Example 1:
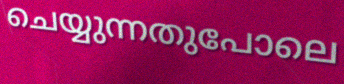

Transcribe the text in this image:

ചെയ്യുന്നതുപോലെ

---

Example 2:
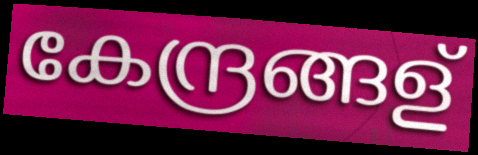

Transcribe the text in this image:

കേന്ദ്രങ്ങള്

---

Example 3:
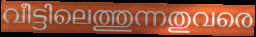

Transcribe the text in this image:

വീട്ടിലെത്തുന്നതുവരെ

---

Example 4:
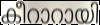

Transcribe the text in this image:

കീറാറായി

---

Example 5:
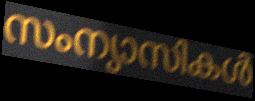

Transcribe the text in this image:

സംന്യാസികൾ